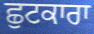
ਛੁਟਕਾਰਾ